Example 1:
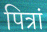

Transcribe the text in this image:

पित्रां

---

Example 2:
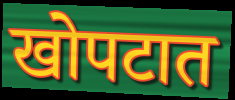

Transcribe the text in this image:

खोपटात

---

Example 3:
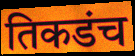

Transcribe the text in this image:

तिकडंच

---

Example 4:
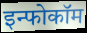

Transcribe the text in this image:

इन्फोकॉम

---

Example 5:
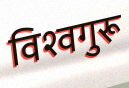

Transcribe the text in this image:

विश्वगुरू